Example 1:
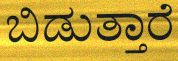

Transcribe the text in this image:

ಬಿಡುತ್ತಾರೆ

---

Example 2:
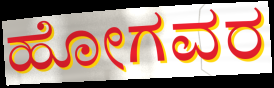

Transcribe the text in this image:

ಹೋಗವರ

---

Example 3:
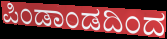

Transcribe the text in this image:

ಪಿಂಡಾಂಡದಿಂದ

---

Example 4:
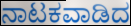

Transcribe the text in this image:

ನಾಟಕವಾಡಿದ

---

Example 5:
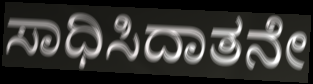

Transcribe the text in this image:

ಸಾಧಿಸಿದಾತನೇ